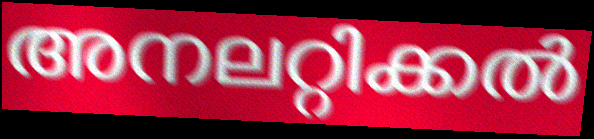
അനലറ്റിക്കൽ